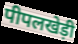
पीपलखेड़ी